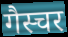
गैस्चर